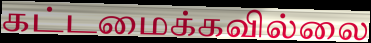
கட்டமைக்கவில்லை